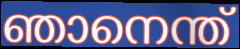
ഞാനെന്ത്